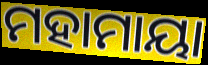
ମହାମାୟା